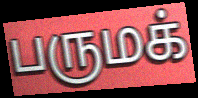
பருமக்